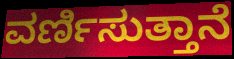
ವರ್ಣಿಸುತ್ತಾನೆ